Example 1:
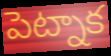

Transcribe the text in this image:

పెట్నాక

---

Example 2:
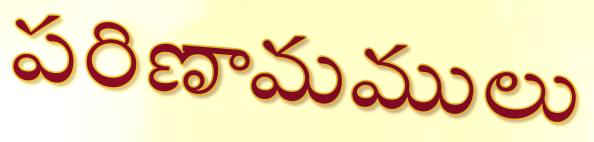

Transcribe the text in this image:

పరిణామములు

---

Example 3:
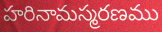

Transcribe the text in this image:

హరినామస్మరణము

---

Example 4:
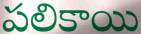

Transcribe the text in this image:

పలికాయి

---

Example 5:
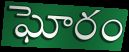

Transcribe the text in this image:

ఘోరం